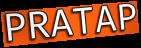
PRATAP